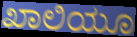
ಖಾಲಿಯೂ